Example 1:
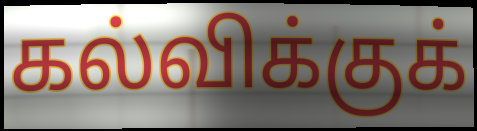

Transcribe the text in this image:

கல்விக்குக்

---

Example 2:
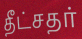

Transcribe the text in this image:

தீட்சதர்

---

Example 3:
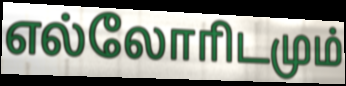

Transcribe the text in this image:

எல்லோரிடமும்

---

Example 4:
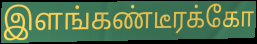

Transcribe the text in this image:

இளங்கண்டீரக்கோ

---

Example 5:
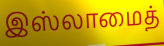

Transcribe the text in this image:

இஸ்லாமைத்